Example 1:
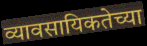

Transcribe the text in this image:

व्यावसायिकतेच्या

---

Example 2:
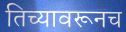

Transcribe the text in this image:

तिच्यावरूनच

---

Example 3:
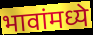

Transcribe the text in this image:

भावांमध्ये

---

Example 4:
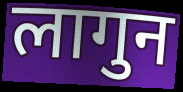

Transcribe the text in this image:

लागुन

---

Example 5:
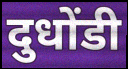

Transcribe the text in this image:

दुधोंडी